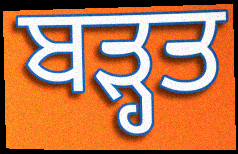
ਬੜ੍ਹਤ